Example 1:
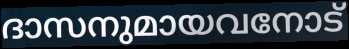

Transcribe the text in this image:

ദാസനുമായവനോട്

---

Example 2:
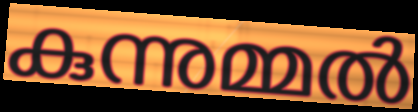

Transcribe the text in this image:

കുന്നുമ്മൽ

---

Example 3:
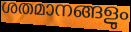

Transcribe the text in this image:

ശതമാനങ്ങളും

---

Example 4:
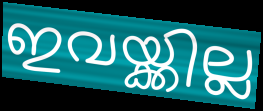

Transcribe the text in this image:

ഇവയ്ക്കില്ല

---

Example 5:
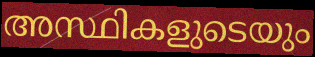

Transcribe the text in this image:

അസ്ഥികളുടെയും